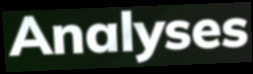
Analyses